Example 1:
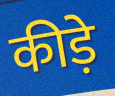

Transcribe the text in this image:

कीड़े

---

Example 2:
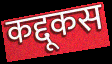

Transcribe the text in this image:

कद्दूकस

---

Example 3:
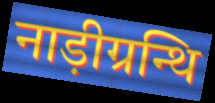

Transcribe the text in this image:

नाड़ीग्रन्थि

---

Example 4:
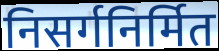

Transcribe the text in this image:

निसर्गनिर्मित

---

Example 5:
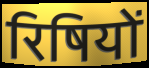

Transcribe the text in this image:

रिषियों